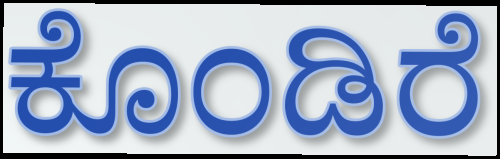
ಕೊಂಡಿರೆ